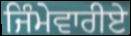
ਜਿੰਮੇਵਾਰੀਏ